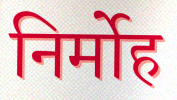
निर्मोह